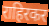
राहिरकर